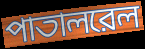
পাতালরেল